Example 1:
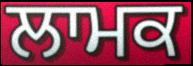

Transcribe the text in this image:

ਲਾਮਕ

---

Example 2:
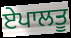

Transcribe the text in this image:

ਏਪਾਲਤੂ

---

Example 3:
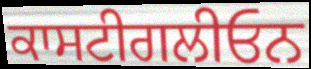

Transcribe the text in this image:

ਕਾਸਟੀਗਲੀਓਨ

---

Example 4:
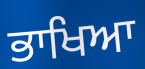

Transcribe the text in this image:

ਭਾਖਿਆ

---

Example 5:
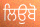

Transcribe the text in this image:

ਲਿਉਬੋ